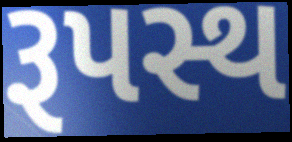
રૂપસ્થ